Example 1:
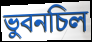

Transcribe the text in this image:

ভুবনচিল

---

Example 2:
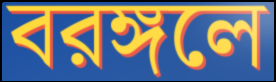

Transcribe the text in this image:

বরঙ্গলে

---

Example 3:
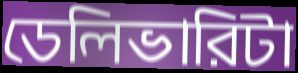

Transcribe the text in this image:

ডেলিভারিটা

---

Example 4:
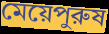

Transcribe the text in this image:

মেয়েপুরুষ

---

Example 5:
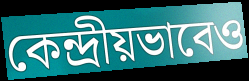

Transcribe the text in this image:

কেন্দ্রীয়ভাবেও